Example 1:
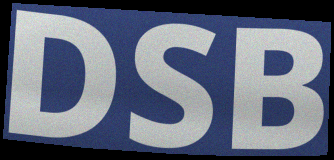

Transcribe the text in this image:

DSB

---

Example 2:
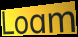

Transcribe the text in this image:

Loam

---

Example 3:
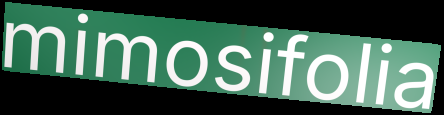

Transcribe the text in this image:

mimosifolia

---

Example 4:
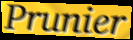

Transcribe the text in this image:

Prunier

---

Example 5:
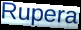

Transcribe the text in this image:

Rupera